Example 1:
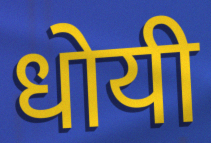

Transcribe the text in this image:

धोयी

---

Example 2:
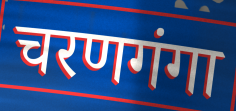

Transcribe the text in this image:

चरणगंगा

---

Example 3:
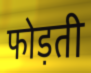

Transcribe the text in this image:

फोड़ती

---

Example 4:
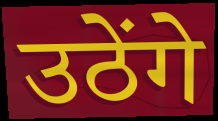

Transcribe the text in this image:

उठेंगे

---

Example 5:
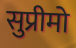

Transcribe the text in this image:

सुप्रीमो